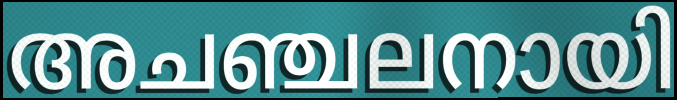
അചഞ്ചലനായി